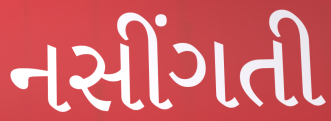
નસીંગતી